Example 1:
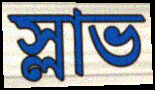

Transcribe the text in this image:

স্লাভ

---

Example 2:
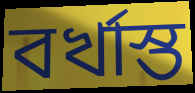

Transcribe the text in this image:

বৰ্খাস্ত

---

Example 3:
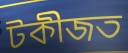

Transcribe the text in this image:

টকীজত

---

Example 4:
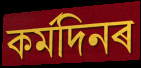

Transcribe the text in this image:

কৰ্মদিনৰ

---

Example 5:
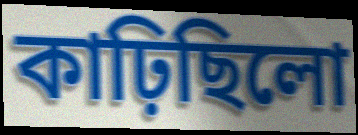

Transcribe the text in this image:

কাঢ়িছিলো